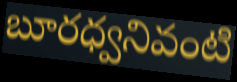
బూరధ్వనివంటి